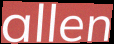
allen